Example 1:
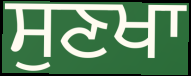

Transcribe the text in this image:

ਸੁਣਖਾ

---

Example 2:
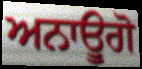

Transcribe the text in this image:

ਅਨਾਊਗੋ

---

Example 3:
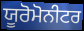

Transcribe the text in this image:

ਯੂਰੋਮੋਨੀਟਰ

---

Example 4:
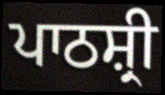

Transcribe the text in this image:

ਪਾਠਸ਼੍ਰੀ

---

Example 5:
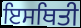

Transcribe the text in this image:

ਇਸਥਿਤੀ